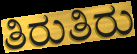
ತಿರುತಿರು